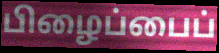
பிழைப்பைப்